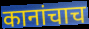
कानांचाच